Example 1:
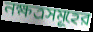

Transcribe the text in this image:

নক্ষত্রসমূহের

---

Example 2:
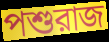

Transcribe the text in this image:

পশুরাজ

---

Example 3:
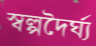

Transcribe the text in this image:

স্বল্পদৈর্ঘ্য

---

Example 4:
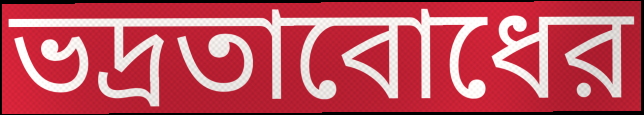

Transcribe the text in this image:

ভদ্রতাবোধের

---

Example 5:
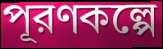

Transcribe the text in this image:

পূরণকল্পে